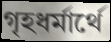
গৃহধর্মার্থে